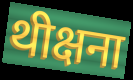
थीक्षना